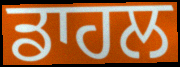
ਡਾਹਲ